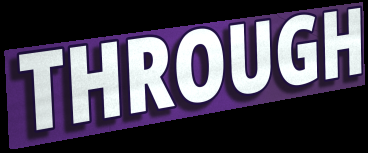
THROUGH